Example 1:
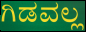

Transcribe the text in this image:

ಗಿಡವಲ್ಲ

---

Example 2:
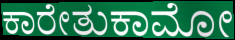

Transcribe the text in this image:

ಕಾರೇತುಕಾಮೋ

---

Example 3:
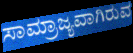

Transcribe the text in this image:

ಸಾಮ್ರಾಜ್ಯವಾಗಿರುವ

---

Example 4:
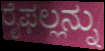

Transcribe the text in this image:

ರೈಫಲ್ಲನ್ನು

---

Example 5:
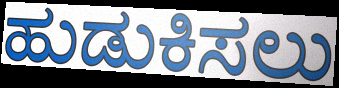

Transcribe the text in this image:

ಹುಡುಕಿಸಲು